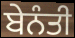
ਬੇਨੰਤੀ